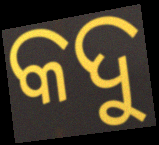
କଦୁ